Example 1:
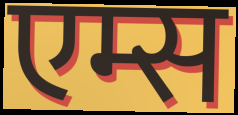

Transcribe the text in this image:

एम्स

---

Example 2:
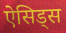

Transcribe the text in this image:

ऐसिड्स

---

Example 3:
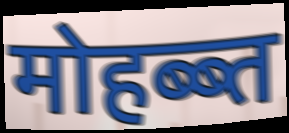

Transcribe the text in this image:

मोहब्ब्त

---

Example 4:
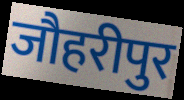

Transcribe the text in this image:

जौहरीपुर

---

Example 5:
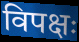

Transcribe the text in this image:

विपक्षः